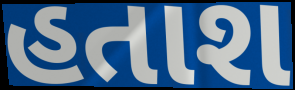
હતાશ